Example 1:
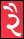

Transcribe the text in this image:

રૈ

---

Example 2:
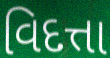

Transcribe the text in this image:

વિદત્તા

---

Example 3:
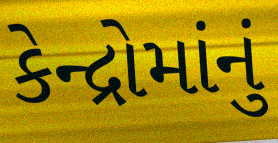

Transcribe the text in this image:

કેન્દ્રોમાંનું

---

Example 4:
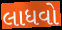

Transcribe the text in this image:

લાધવો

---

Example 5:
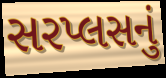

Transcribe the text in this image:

સરપ્લસનું